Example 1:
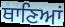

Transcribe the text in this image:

ਥਾਣਿਆਂ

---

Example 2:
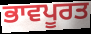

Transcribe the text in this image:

ਭਾਵਪੂਰਤ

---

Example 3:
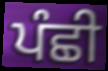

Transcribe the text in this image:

ਪੰਛੀ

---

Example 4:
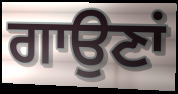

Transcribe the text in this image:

ਗਾਉਣਾਂ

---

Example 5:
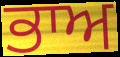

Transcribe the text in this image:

ਭਾਅ